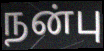
நன்பு